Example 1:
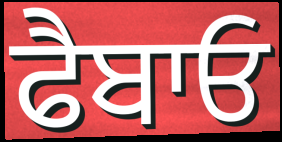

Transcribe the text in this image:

ਫੈਬਾਓ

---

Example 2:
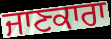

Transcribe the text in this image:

ਜਾਣਕਾਰਾ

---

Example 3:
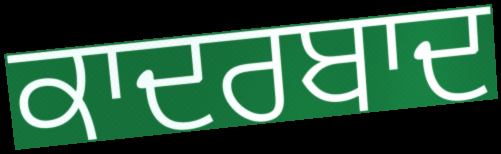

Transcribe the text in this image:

ਕਾਦਰਬਾਦ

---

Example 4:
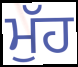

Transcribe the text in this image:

ਮੁੱਹ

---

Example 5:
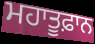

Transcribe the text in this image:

ਮਹਾਤੂਫ਼ਾਨ